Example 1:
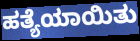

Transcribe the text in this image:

ಹತ್ಯೆಯಾಯಿತು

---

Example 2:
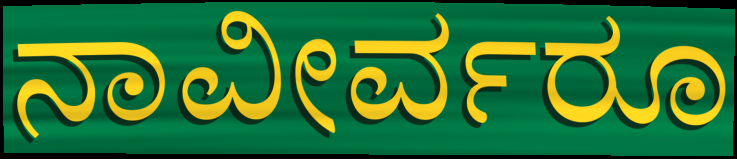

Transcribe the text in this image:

ನಾವೀರ್ವರೂ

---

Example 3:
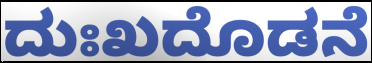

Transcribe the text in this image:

ದುಃಖದೊಡನೆ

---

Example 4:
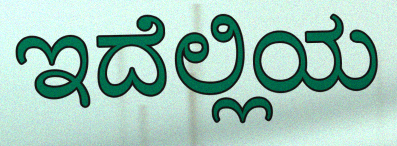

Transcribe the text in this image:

ಇದೆಲ್ಲಿಯ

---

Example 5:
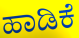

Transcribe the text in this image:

ಹಾಡಿಕೆ